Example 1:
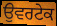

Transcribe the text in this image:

ਉਵਰਟੇਕ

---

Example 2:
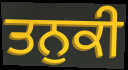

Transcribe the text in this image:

ਤਨੁਕੀ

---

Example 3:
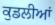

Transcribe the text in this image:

ਕੁਡਲੀਆਂ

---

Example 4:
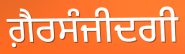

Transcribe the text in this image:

ਗ਼ੈਰਸੰਜੀਦਗੀ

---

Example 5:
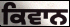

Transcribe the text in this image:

ਕਿਵਾਨ